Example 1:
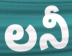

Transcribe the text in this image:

లనీ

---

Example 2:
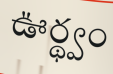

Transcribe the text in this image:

ఊర్థ్వం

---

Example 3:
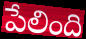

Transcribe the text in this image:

పేలింది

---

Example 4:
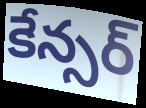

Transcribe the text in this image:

కేన్సర్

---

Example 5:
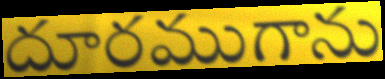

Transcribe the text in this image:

దూరముగాను